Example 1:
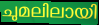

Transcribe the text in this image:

ചുമലിലായി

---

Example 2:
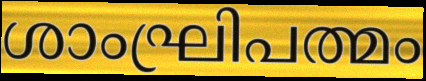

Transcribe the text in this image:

ശാംഘ്രിപത്മം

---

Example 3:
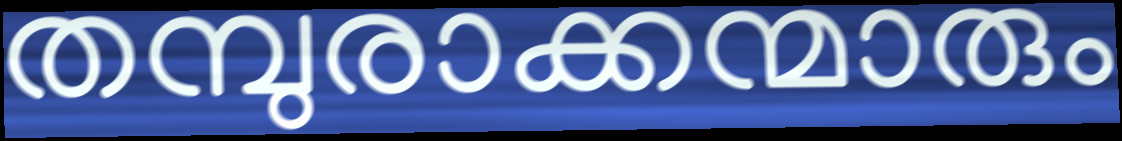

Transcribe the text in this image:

തമ്പുരാക്കന്മാരും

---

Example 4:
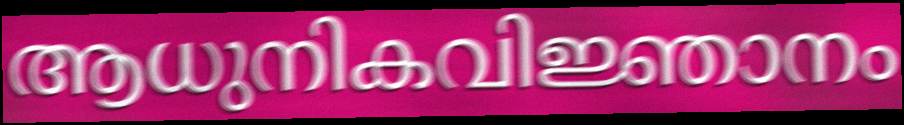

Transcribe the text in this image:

ആധുനികവിജ്ഞാനം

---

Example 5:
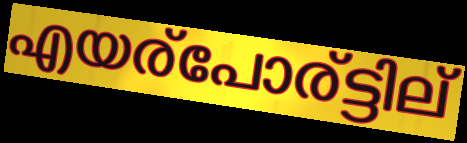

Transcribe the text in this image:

എയര്പോര്ട്ടില്